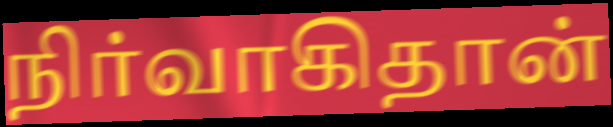
நிர்வாகிதான்